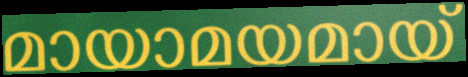
മായാമയമായ്